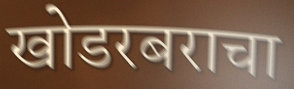
खोडरबराचा